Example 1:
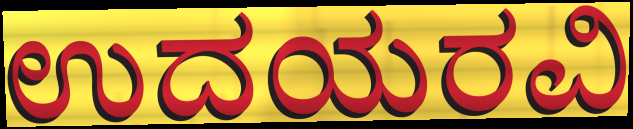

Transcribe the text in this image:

ಉದಯರವಿ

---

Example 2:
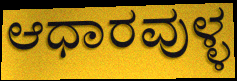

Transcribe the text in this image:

ಆಧಾರವುಳ್ಳ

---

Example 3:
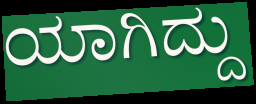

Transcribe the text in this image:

ಯಾಗಿದ್ದು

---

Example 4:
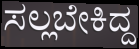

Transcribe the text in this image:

ಸಲ್ಲಬೇಕಿದ್ದ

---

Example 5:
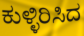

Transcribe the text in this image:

ಕುಳ್ಳಿರಿಸಿದ